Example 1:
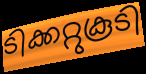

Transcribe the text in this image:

ടിക്കറ്റുകൂടി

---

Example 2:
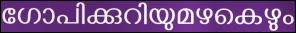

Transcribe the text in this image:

ഗോപിക്കുറിയുമഴകെഴും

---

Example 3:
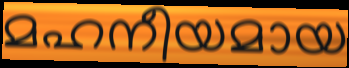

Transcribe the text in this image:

മഹനീയമായ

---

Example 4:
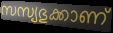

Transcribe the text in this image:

സസ്യഭുക്കാണ്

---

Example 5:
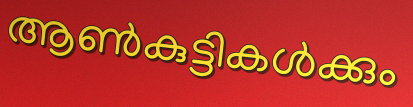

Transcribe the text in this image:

ആൺകുട്ടികൾക്കും